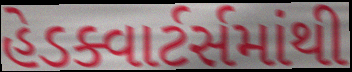
હેડક્વાર્ટર્સમાંથી